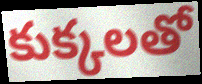
కుక్కలతో